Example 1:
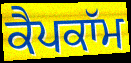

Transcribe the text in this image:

ਕੈਪਕਾੱਮ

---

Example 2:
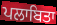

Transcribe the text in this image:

ਪਲਾਬਿਤਾ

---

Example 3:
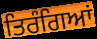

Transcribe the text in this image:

ਤਿਰੰਗਿਆਂ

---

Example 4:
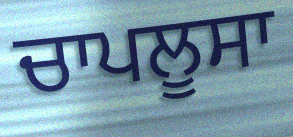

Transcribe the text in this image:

ਚਾਪਲੂਸਾ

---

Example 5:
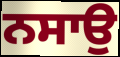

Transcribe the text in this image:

ਨਸਾਉ